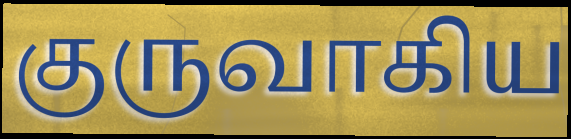
குருவாகிய